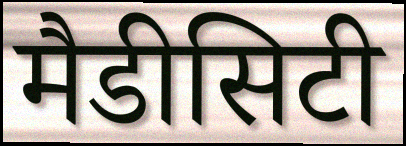
मैडीसिटी